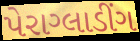
પેરાગ્લાડીંગ